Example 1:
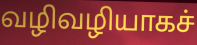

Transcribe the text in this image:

வழிவழியாகச்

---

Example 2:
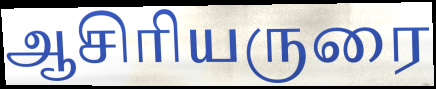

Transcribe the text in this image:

ஆசிரியருரை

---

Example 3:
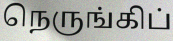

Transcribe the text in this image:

நெருங்கிப்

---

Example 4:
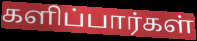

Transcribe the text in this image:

களிப்பார்கள்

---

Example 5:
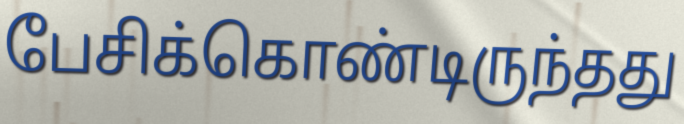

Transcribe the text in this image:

பேசிக்கொண்டிருந்தது